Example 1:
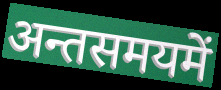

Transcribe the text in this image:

अन्तसमयमें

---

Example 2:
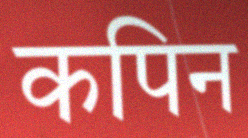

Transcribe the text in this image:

कपिन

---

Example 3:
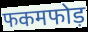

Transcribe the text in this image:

फकमफोड़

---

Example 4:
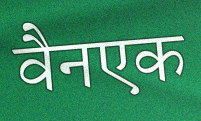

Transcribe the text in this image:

वैनएक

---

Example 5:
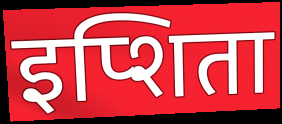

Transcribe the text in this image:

इप्शिता